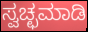
ಸ್ವಚ್ಛಮಾಡಿ